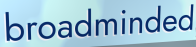
broadminded